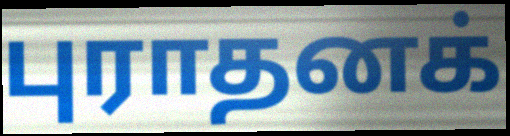
புராதனக்